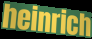
heinrich